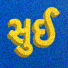
સુઈ